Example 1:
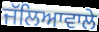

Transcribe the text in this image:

ਜੱਲਿਆਵਾਲੇ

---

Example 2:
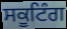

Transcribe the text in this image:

ਸਕੂਟਿੰਗ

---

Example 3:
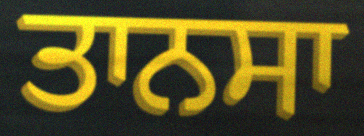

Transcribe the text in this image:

ਤਾਨਸਾ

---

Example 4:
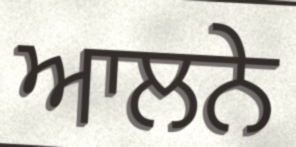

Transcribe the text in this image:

ਆਲਨੇ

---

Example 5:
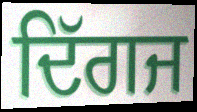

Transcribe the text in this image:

ਦਿੱਗਜ